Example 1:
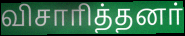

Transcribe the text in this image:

விசாரித்தனர்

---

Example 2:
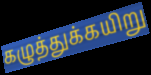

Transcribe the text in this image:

கழுத்துக்கயிறு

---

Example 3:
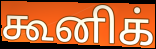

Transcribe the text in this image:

கூனிக்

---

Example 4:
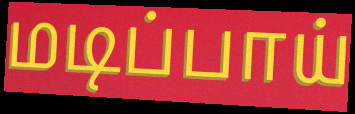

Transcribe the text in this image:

மடிப்பாய்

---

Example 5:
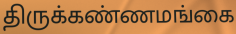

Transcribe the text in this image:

திருக்கண்ணமங்கை